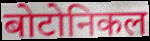
बोटोनिकल